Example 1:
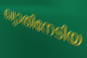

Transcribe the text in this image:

ഖ്യാതിനേടിയ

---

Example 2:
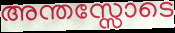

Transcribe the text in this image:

അന്തസ്സോടെ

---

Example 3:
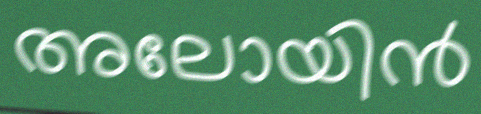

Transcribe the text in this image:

അലോയിൻ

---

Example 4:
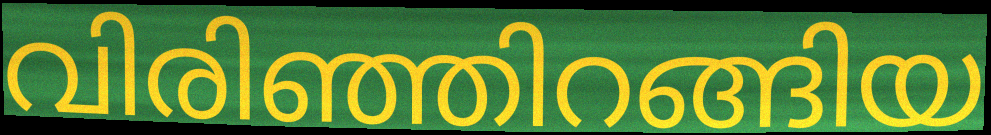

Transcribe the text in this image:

വിരിഞ്ഞിറങ്ങിയ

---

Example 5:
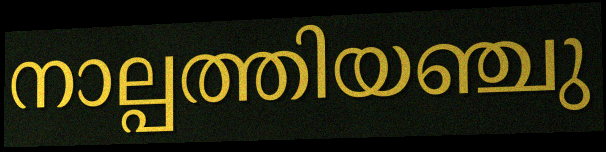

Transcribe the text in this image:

നാല്പത്തിയഞ്ചു